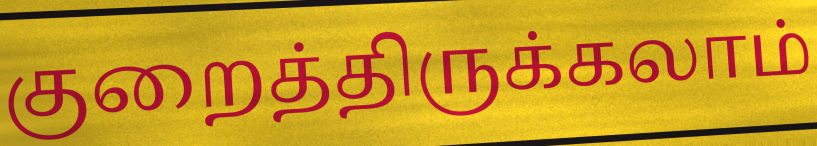
குறைத்திருக்கலாம்